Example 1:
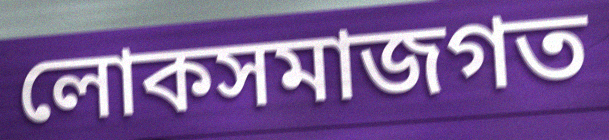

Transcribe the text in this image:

লোকসমাজগত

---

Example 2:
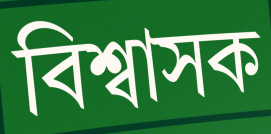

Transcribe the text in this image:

বিশ্বাসক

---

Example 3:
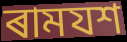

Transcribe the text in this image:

ৰামযশ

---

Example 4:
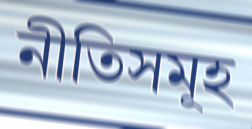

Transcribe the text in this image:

নীতিসমূহ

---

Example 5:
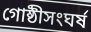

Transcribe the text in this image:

গোষ্ঠীসংঘৰ্ষ